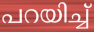
പറയിച്ച്